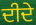
ਦੀਦੇ